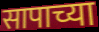
सापाच्या